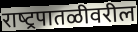
राष्ट्रपातळीवरील